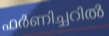
ഫർണിച്ചറിൽ